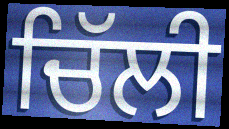
ਚਿੱਲੀ